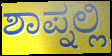
ಶಾಪ್ನಲ್ಲಿ